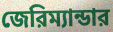
জেরিম্যান্ডার